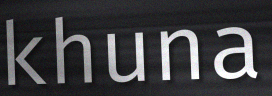
khuna